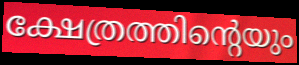
ക്ഷേത്രത്തിന്റെയും